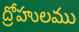
ద్రోహులము